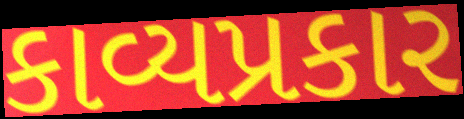
કાવ્યપ્રકાર